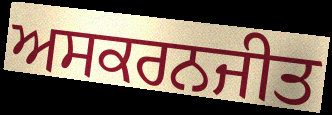
ਅਸਕਰਨਜੀਤ